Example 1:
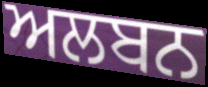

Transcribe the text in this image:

ਅਲਬਨ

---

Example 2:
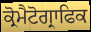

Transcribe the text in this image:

ਕ੍ਰੋਮੈਟੋਗ੍ਰਾਫਿਕ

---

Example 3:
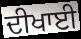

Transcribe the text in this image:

ਦੀਖਾਈ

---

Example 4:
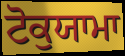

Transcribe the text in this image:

ਟੋਕੁਯਾਮਾ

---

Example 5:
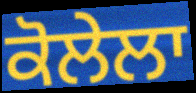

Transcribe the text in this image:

ਕੋਲੇਲਾ